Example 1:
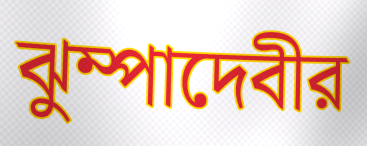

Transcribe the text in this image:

ঝুম্পাদেবীর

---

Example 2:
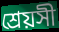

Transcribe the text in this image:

শ্রেয়সী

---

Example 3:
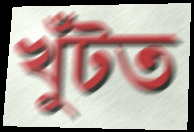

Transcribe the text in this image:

খুঁটত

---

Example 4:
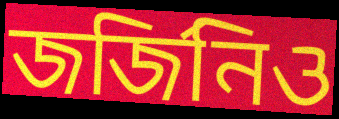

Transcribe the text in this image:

জর্জিনিও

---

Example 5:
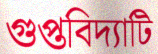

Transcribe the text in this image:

গুপ্তবিদ্যাটি